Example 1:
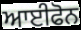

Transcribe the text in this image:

ਆਈਫੋਨ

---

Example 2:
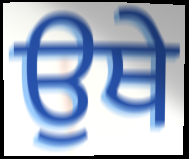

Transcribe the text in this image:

ਉਥੇ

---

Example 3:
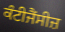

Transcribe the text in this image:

ਕੰਟੀਜੈਂਸੀਜ਼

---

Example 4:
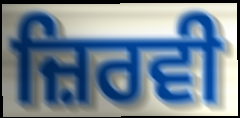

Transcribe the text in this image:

ਜ਼ਿਰਵੀ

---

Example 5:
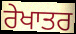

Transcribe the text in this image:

ਰੇਖਾਤਰ